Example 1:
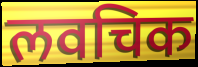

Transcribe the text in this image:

लवचिक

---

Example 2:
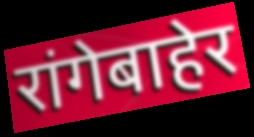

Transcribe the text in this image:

रांगेबाहेर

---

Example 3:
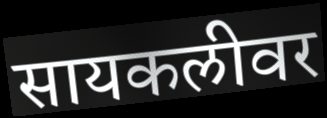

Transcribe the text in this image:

सायकलीवर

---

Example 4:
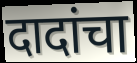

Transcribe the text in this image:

दादांचा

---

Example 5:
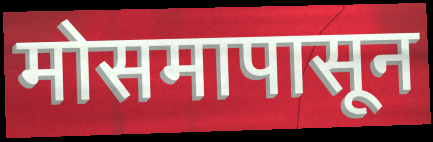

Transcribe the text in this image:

मोसमापासून